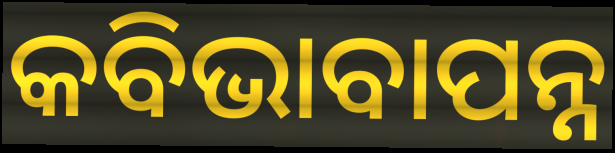
କବିଭାବାପନ୍ନ